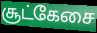
சூட்கேசை